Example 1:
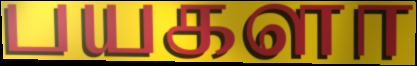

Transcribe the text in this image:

பயகளா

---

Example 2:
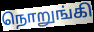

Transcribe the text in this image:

நொறுங்கி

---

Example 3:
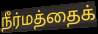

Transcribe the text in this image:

நீர்மத்தைக்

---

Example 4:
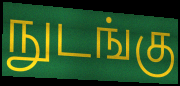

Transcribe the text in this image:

நுடங்கு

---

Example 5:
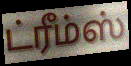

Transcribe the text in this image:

ட்ரீம்ஸ்